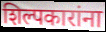
शिल्पकारांना